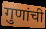
गुणांची